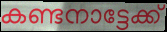
കണ്ടനാട്ടേക്ക്